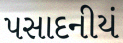
પસાદનીયં